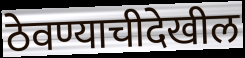
ठेवण्याचीदेखील